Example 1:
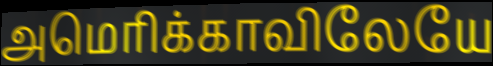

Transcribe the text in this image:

அமெரிக்காவிலேயே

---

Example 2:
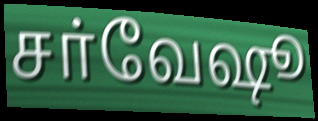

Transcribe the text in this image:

சர்வேஷூ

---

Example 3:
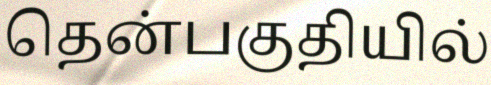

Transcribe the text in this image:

தென்பகுதியில்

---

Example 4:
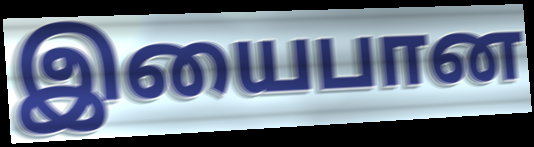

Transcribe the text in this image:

இயைபான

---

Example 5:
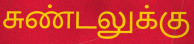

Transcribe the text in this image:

சுண்டலுக்கு